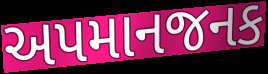
અપમાનજનક